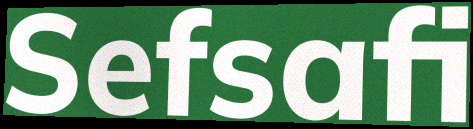
Sefsafi